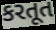
કરતૂત